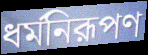
ধর্মনিরূপণ